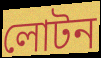
লোটন